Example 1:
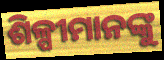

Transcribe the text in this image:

ଶିଳ୍ପୀମାନଙ୍କୁ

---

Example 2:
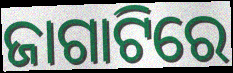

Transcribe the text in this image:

ଜାଗାଟିରେ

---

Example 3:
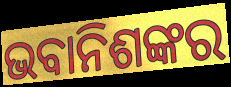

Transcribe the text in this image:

ଭବାନିଶଙ୍କର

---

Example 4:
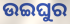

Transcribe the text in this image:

ଉଇଘୁର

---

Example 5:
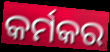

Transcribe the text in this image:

କର୍ମକର